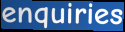
enquiries